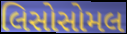
લિસોસોમલ